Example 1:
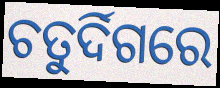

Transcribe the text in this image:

ଚତୁର୍ଦିଗରେ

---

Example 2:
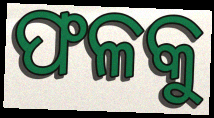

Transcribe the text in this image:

ଫଳକୁ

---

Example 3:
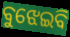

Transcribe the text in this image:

ବୁଝେଇବି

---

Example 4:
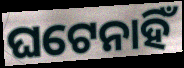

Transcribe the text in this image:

ଘଟେନାହିଁ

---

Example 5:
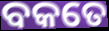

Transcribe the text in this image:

ବକତେ